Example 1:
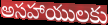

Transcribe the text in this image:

అసహాయులకు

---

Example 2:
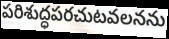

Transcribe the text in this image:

పరిశుద్ధపరచుటవలనను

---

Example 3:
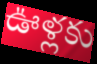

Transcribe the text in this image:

ఊళ్లకు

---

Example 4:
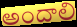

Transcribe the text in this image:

అందాలి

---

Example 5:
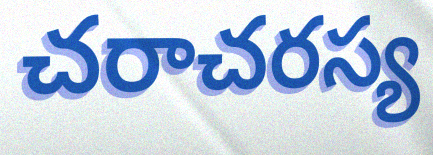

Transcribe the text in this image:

చరాచరస్య